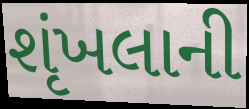
શૃંખલાની